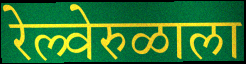
रेल्वेरुळाला